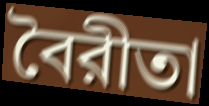
বৈরীতা